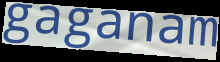
gaganam